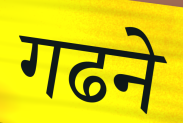
गढने